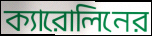
ক্যারোলিনের